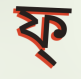
ফ্